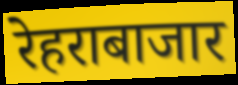
रेहराबाजार